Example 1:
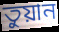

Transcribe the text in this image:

তুয়ান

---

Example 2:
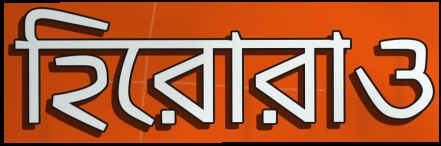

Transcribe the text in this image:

হিরোরাও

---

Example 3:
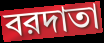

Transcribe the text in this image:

বরদাতা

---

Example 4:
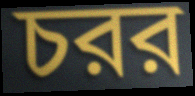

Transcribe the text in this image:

চরর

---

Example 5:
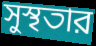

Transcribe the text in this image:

সুস্থতার